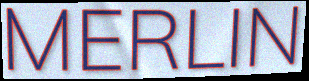
MERLIN